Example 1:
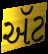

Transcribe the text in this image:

ઍટ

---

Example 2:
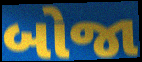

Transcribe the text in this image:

બોજા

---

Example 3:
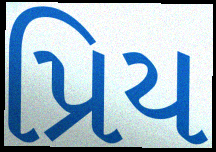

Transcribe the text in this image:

પ્રિય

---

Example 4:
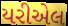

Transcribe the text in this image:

યરીએલ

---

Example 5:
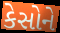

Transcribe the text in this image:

કેસોને